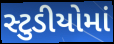
સ્ટુડીયોમાં